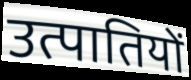
उत्पातियों